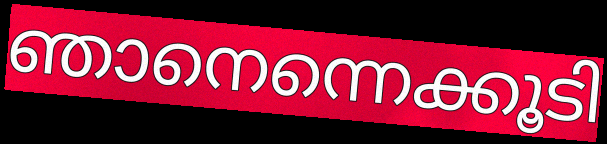
ഞാനെന്നെക്കൂടി